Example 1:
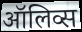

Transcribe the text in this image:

ऑलिव्स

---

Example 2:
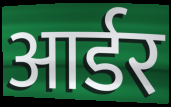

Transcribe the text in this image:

आर्डर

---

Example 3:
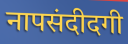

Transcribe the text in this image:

नापसंदीदगी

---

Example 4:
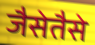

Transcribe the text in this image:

जैसेतैसे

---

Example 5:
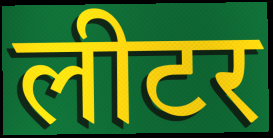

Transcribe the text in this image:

लीटर